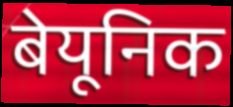
बेयूनिक